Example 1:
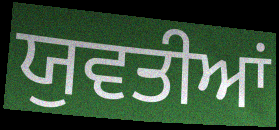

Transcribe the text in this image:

ਯੁਵਤੀਆਂ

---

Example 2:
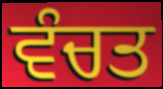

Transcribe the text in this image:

ਵੰਚਤ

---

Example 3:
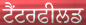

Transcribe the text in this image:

ਟੈਂਟਰਫੀਲਡ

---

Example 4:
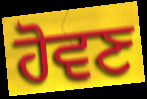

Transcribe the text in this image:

ਹੋਵਣ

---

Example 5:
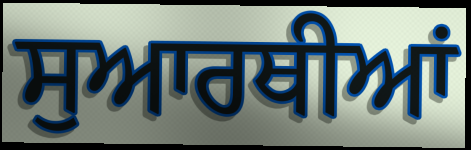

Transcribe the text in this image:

ਸੁਆਰਥੀਆਂ